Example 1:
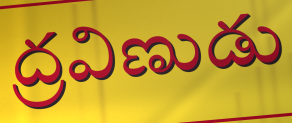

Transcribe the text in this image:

ద్రవిణుడు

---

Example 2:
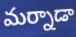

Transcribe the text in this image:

మర్నాడా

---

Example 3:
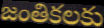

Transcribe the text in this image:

జంతికలకు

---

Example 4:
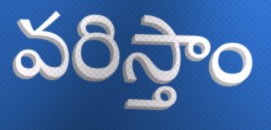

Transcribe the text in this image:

వరిస్తాం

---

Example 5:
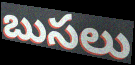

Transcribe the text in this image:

బుసలు